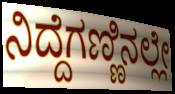
ನಿದ್ದೆಗಣ್ಣಿನಲ್ಲೇ